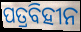
ପତ୍ରବିହୀନ